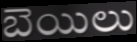
బెయిలు